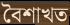
বৈশাখত